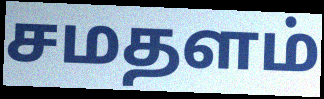
சமதளம்